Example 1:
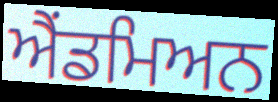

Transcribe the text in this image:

ਐਂਡਮਿਅਨ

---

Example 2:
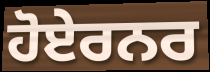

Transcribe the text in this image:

ਹੋਏਰਨਰ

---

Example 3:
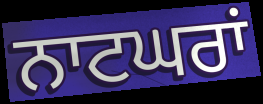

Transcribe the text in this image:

ਨਾਟਘਰਾਂ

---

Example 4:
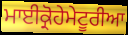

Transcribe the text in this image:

ਮਾਈਕ੍ਰੋਹੇਮੇਟੂਰੀਆ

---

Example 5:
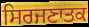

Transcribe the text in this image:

ਸਿਰਜਣਾਤਕ